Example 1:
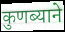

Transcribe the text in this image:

कुणब्याने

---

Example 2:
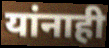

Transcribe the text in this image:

यांनाही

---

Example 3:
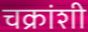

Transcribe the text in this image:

चक्रांशी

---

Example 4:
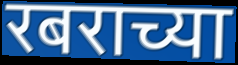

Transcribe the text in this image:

रबराच्या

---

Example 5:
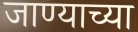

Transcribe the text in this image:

जाण्याच्या